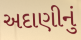
અદાણીનું